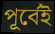
পূৰ্বেই